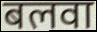
बलवा